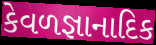
કેવળજ્ઞાનાદિક